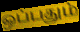
ஒப்பதும்